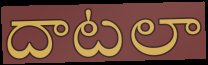
దాటలా